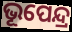
ଭୂପେନ୍ଦ୍ର